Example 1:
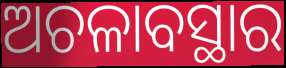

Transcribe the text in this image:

ଅଚଳାବସ୍ଥାର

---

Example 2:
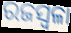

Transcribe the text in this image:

ରଜସ୍ବଳା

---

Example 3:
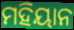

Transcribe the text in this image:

ମହିୟାନ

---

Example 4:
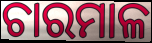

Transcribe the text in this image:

ଚାରମାଳ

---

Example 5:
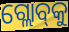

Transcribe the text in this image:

ଗ୍ଲୋବ୍‌କୁ